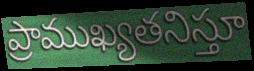
ప్రాముఖ్యతనిస్తూ